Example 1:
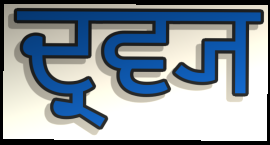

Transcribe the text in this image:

ਦ੍ਰਵ੍ਯ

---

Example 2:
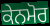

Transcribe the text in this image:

ਕੇਨਮੋਰ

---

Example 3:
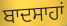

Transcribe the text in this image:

ਬਾਦਸਾਹਾਂ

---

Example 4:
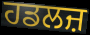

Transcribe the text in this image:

ਹਡਲਜ਼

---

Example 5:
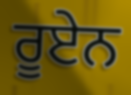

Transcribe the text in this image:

ਰੂਏਨ